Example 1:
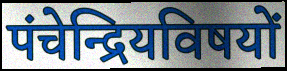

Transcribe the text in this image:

पंचेन्द्रियविषयों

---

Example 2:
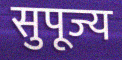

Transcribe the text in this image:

सुपूज्य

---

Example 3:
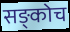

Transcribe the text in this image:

सङ्कोच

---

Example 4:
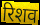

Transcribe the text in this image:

रिशव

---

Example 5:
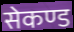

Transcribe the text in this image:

सेकण्ड